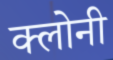
क्लोनी